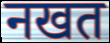
नखत